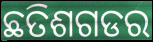
ଛତିଶଗଡର